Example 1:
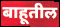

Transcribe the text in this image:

बाहूतील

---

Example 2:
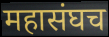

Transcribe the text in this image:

महासंघच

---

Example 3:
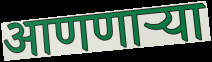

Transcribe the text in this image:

आणणाऱ्या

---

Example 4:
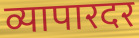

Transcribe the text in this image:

व्यापारदर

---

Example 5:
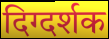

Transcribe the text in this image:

दिग्‍दर्शक